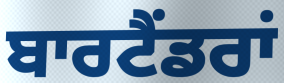
ਬਾਰਟੈਂਡਰਾਂ